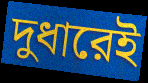
দুধারেই